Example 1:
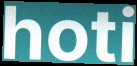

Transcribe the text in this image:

hoti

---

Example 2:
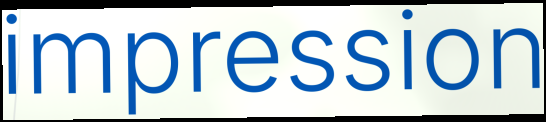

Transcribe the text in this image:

impression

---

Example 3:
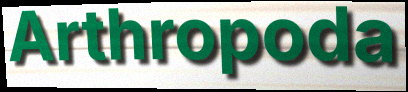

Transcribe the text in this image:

Arthropoda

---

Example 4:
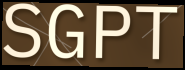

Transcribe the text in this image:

SGPT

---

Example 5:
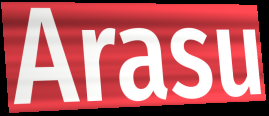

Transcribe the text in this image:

Arasu